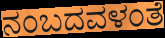
ನಂಬದವಳಂತೆ